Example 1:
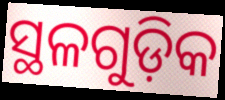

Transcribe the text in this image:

ସ୍ଥଳଗୁଡ଼ିକ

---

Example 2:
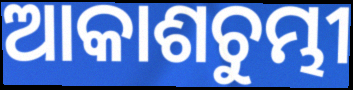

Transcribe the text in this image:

ଆକାଶଚୁମ୍ଭୀ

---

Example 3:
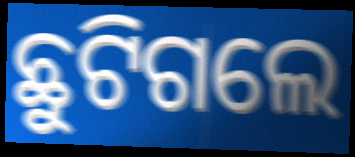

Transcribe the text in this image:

ଛୁଟିଗଲେ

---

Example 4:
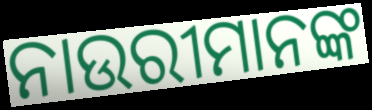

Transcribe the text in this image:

ନାଉରୀମାନଙ୍କ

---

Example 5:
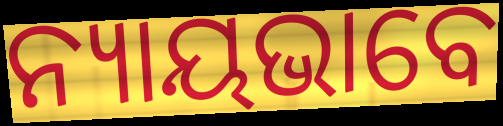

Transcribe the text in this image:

ନ୍ୟାୟଭାବେ